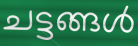
ചട്ടങ്ങൾ